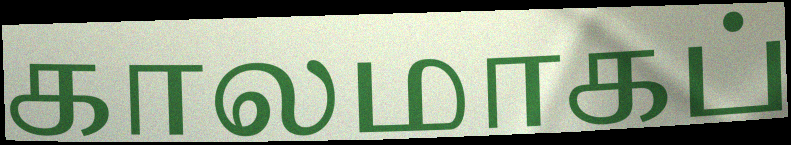
காலமாகப்